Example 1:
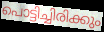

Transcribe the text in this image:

പൊട്ടിച്ചിരിക്കും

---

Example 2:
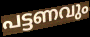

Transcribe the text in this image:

പട്ടണവും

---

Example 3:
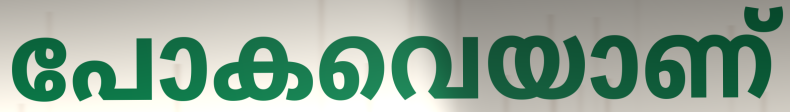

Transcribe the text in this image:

പോകവെയാണ്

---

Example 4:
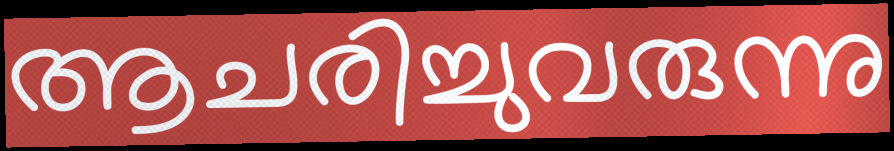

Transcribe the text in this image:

ആചരിച്ചുവരുന്നു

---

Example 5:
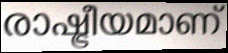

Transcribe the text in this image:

രാഷ്ട്രീയമാണ്